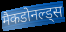
मैकडोनल्ड्स